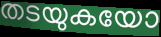
തടയുകയോ